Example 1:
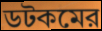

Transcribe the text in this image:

ডটকমের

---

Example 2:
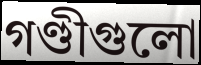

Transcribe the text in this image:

গণ্ডীগুলো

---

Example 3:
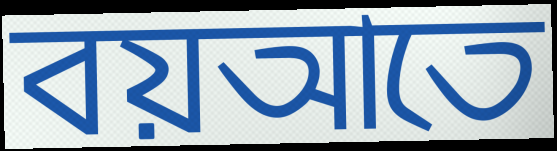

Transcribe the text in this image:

বয়আতে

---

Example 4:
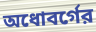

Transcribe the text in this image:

অধোবর্গের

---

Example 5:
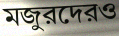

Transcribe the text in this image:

মজুরদেরও